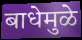
बाधेमुळे